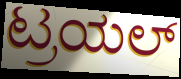
ಟ್ರಯಲ್